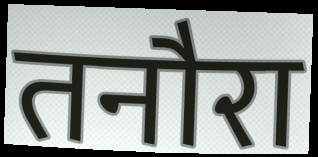
तनौरा